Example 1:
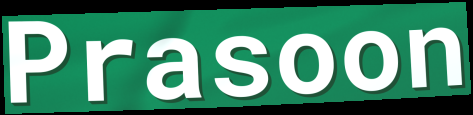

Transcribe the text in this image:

Prasoon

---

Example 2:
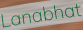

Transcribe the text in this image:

Lanabhat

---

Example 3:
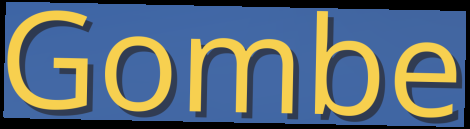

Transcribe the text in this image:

Gombe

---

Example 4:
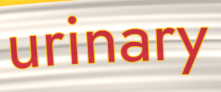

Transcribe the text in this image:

urinary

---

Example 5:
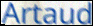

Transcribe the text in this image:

Artaud